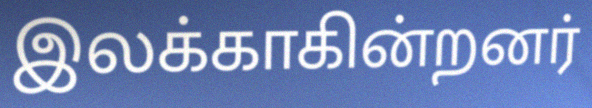
இலக்காகின்றனர்